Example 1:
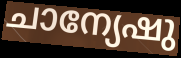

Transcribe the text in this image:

ചാന്യേഷു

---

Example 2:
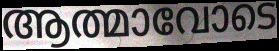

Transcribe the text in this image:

ആത്മാവോടെ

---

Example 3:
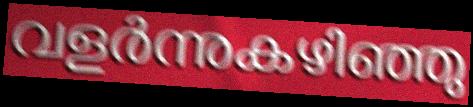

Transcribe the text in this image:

വളർന്നുകഴിഞ്ഞു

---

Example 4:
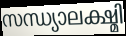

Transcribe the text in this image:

സന്ധ്യാലക്ഷ്മി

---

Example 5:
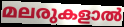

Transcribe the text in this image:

മലരുകളാൽ